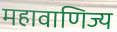
महावाणिज्‍य